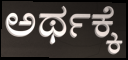
ಅರ್ಥಕ್ಕೆ